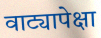
वाट्यापेक्षा